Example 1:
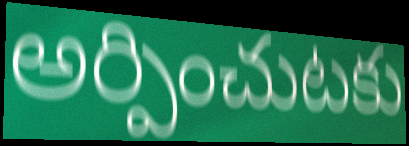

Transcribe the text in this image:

అర్పించుటకు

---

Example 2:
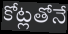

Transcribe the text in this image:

కోట్లతోనే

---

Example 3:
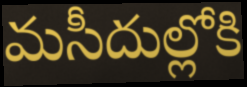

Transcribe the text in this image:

మసీదుల్లోకి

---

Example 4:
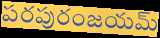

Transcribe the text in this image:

పరపురంజయమ్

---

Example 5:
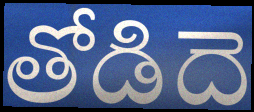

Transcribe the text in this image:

తోడిదె